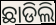
ଛାଡିଲି